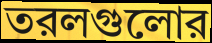
তরলগুলোর